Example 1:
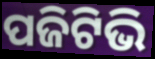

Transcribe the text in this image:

ପଜିଟିଭି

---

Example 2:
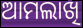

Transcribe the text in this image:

ଆମଲାଖି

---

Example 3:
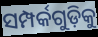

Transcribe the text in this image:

ସମ୍ପର୍କଗୁଡ଼ିକୁ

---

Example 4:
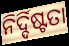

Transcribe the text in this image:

ନିର୍ଦ୍ଦିଷ୍ଟତା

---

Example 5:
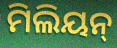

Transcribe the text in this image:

ମିଲିୟନ୍